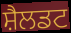
ਸ਼ੈਲਡਟ